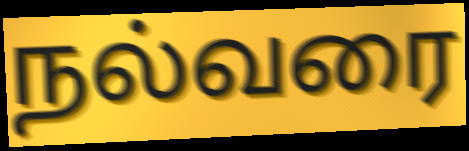
நல்வரை